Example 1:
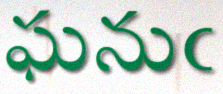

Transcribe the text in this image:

ఘనుఁ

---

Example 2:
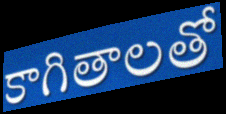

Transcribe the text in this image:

కాగితాలతో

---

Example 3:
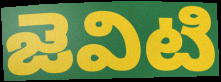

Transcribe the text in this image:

జెవిటి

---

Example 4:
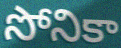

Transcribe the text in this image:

సోనికా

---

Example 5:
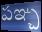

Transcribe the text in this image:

పఞ్చ